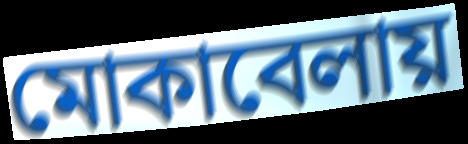
মোকাবেলায়